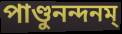
পাণ্ডুনন্দনম্